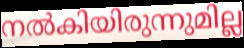
നൽകിയിരുന്നുമില്ല